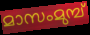
മാസംമുമ്പ്